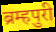
ब्रम्हपुरी